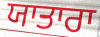
ਯਾਤਾਰਾ